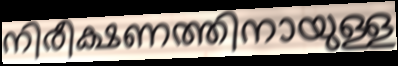
നിരീക്ഷണത്തിനായുള്ള